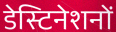
डेस्टिनेशनों